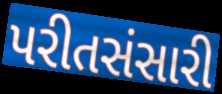
પરીતસંસારી